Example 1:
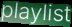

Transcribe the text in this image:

playlist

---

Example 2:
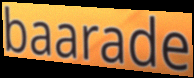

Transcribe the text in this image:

baarade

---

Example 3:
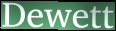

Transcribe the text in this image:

Dewett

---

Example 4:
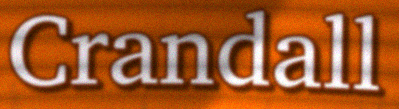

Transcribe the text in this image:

Crandall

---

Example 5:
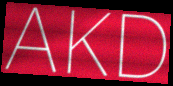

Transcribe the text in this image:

AKD